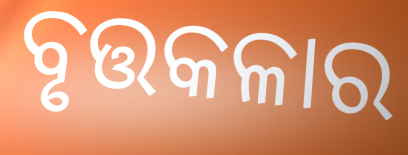
ବୃତ୍ତକଳାର